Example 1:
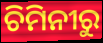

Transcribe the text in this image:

ଚିମିନୀରୁ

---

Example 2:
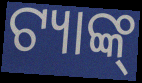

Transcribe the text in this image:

ଟ୍ୟାଙ୍କ୍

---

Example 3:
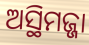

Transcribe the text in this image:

ଅସ୍ଥିମଜ୍ଜା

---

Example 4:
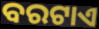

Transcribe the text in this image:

ବରଟାଏ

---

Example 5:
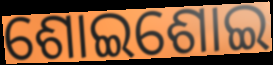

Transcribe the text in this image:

ଶୋଇଶୋଇ